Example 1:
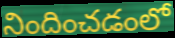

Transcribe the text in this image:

నిందించడంలో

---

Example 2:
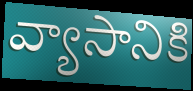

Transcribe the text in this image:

వ్యాసానికి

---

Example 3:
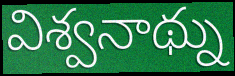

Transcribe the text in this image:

విశ్వనాథ్ను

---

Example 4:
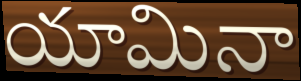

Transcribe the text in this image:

యామినా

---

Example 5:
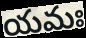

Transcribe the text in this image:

యమః